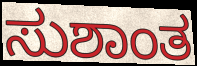
ಸುಶಾಂತ